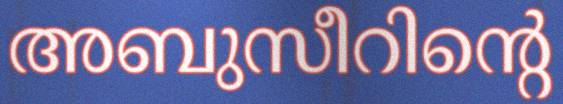
അബുസീറിന്റെ